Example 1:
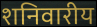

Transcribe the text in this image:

शनिवारीय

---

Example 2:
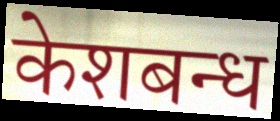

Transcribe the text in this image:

केशबन्ध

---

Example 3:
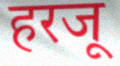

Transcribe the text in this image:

हरजू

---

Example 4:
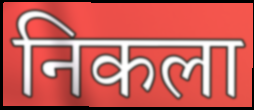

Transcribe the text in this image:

निकला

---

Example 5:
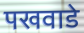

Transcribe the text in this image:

पखवाडे